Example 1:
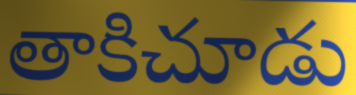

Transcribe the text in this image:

తాకిచూడు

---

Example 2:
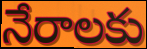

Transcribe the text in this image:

నేరాలకు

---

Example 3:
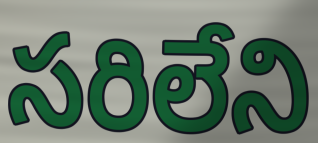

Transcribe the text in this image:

సరిలేని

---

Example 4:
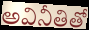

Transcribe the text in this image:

అవినీతితో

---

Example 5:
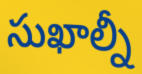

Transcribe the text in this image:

సుఖాల్నీ